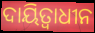
ଦାୟିତ୍ଵାଧୀନ